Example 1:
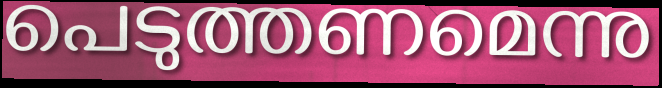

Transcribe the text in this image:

പെടുത്തണമെന്നു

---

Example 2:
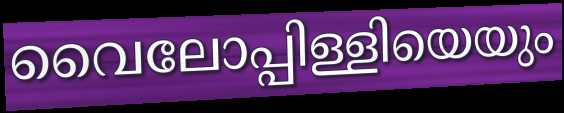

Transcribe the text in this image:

വൈലോപ്പിള്ളിയെയും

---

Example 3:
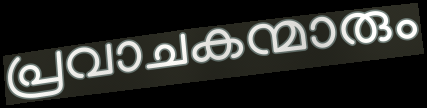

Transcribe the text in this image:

പ്രവാചകന്മാരും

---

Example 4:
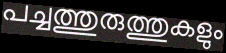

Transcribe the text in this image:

പച്ചത്തുരുത്തുകളും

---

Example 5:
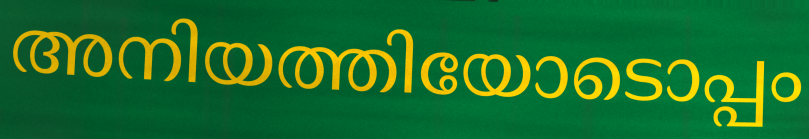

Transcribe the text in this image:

അനിയത്തിയോടൊപ്പം